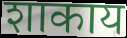
शाकाय